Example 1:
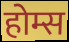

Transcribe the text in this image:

होम्स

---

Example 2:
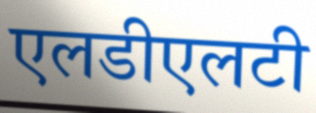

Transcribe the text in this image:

एलडीएलटी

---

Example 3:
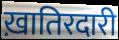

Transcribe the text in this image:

ख़ातिरदारी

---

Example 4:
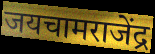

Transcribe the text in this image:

जयचामराजेंद्र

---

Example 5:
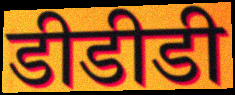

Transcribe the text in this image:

डीडीडी